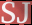
SJ